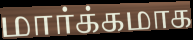
மார்க்கமாக